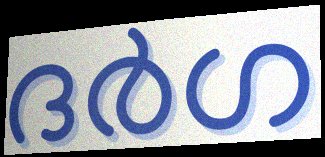
ദർഗ